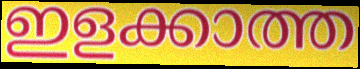
ഇളക്കാത്ത